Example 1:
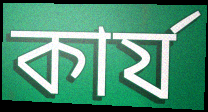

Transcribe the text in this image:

কাৰ্য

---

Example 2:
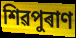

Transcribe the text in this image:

শিৱপুৰাণ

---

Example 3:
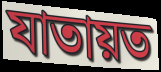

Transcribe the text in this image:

যাতায়ত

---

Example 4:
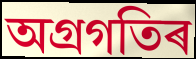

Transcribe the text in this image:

অগ্ৰগতিৰ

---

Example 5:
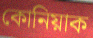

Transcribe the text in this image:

কোনিয়াক